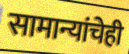
सामान्यांचेही